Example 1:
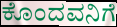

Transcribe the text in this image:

ಕೊಂದವನಿಗೆ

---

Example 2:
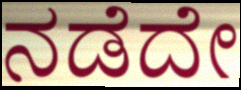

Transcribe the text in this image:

ನಡೆದೇ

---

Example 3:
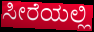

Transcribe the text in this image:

ಸೀರೆಯಲ್ಲಿ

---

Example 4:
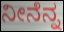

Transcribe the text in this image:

ನೀನೆನ್ನ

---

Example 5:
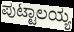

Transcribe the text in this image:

ಪುಟ್ಟಾಲಯ್ಯ